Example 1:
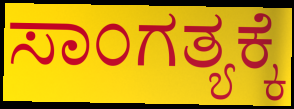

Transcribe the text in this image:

ಸಾಂಗತ್ಯಕ್ಕೆ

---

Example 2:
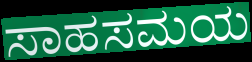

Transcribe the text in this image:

ಸಾಹಸಮಯ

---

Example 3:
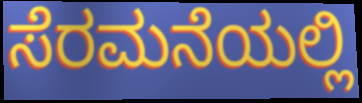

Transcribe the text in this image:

ಸೆರಮನೆಯಲ್ಲಿ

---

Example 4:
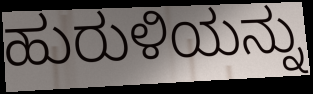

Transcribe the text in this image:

ಹುರುಳಿಯನ್ನು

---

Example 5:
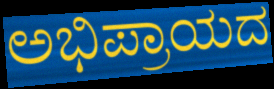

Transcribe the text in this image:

ಅಭಿಪ್ರಾಯದ